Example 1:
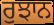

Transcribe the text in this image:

ਰੁਝਾਨ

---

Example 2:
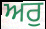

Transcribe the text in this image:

ਅਰੁ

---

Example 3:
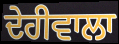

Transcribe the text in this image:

ਦੇਹੀਵਾਲਾ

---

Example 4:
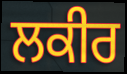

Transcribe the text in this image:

ਲਕੀਰ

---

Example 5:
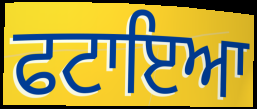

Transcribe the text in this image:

ਫਟਾਇਆ